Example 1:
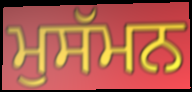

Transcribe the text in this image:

ਮੁਸੱਮਨ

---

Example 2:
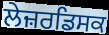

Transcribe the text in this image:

ਲੇਜ਼ਰਡਿਸਕ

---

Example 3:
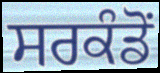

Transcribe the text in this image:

ਸਰਕੰਡੋਂ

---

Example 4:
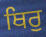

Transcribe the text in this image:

ਥਿਰੁ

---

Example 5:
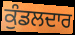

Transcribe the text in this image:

ਕੁੰਡਲਦਾਰ